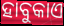
ହାବୁକାଏ